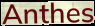
Anthes